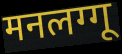
मनलग्गू